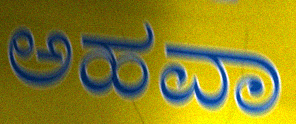
ಅಹವಾ